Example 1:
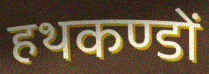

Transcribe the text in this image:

हथकण्डों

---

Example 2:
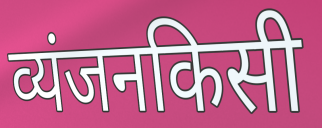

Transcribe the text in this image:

व्यंजनकिसी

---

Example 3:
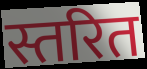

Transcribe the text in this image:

स्तरित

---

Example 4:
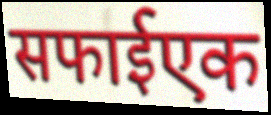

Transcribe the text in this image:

सफाईएक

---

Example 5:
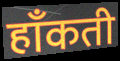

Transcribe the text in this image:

हाँकती